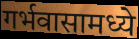
गर्भवासामध्ये